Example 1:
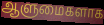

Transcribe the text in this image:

ஆளுமைகளாக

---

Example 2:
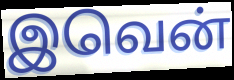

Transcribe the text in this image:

இவென்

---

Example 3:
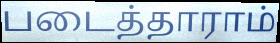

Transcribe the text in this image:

படைத்தாராம்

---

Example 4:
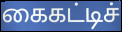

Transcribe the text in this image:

கைகட்டிச்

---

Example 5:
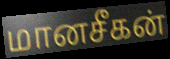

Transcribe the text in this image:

மானசீகன்